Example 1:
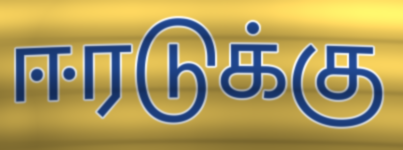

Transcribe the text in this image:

ஈரடுக்கு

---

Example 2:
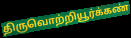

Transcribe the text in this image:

திருவொற்றியூர்க்கண்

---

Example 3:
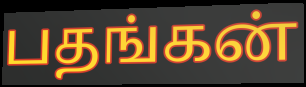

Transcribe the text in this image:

பதங்கன்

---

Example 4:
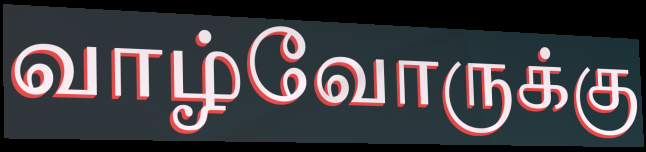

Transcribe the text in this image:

வாழ்வோருக்கு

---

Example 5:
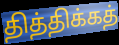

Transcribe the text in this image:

தித்திக்கத்